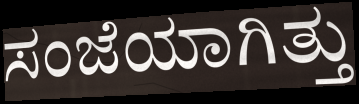
ಸಂಜೆಯಾಗಿತ್ತು